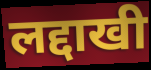
लद्दाखी